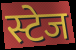
स्टेज